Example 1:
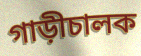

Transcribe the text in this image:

গাড়ীচালক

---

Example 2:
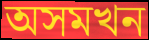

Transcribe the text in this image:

অসমখন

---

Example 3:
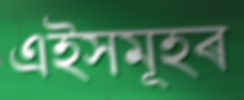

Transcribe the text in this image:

এইসমূহৰ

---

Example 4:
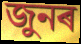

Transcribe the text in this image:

জুনৰ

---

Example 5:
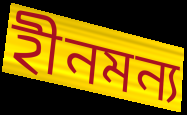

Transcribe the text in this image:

হীনমন্য